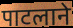
पाटलाने